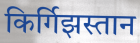
किर्गिझस्तान